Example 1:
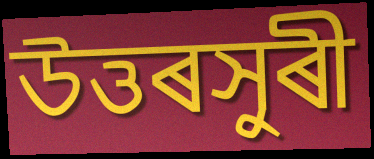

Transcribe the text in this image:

উত্তৰসুৰী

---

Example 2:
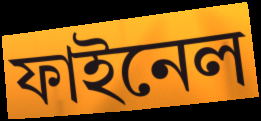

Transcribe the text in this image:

ফাইনেল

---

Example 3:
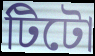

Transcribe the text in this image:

টিটো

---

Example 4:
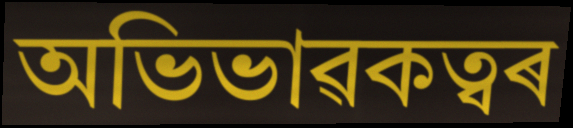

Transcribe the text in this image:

অভিভাৱকত্বৰ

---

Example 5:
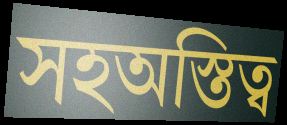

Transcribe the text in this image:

সহঅস্তিত্ব